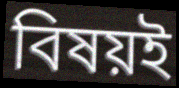
বিষয়ই